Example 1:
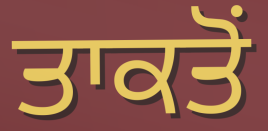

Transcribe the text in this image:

ਤਾਕਤੋਂ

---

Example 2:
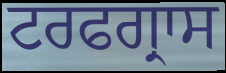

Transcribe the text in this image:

ਟਰਫਗ੍ਰਾਸ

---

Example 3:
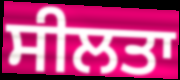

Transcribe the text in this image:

ਸੀਲਤਾ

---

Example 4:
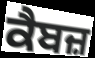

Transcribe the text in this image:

ਕੈਬਜ਼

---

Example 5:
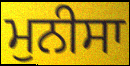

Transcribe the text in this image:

ਮੁਨੀਸਾ